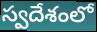
స్వదేశంలో